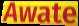
Awate